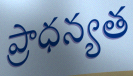
ప్రాధన్యత